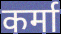
कर्मा